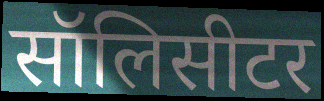
सॉलिसीटर